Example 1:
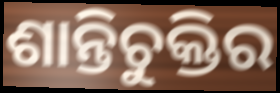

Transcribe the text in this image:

ଶାନ୍ତିଚୁକ୍ତିର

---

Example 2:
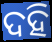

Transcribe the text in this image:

ଦହି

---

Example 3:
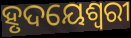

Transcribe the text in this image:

ହୃଦୟେଶ୍ୱରୀ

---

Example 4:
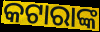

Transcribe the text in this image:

କଟାରାଙ୍କ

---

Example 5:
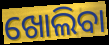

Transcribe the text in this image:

ଖୋଲିବା